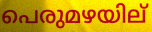
പെരുമഴയില്